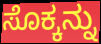
ಸೊಕ್ಕನ್ನು